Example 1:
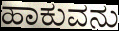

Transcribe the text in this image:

ಹಾಕುವನು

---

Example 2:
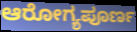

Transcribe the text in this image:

ಆರೋಗ್ಯಪೂರ್ಣ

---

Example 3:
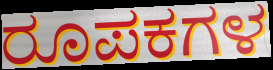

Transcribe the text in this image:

ರೂಪಕಗಳ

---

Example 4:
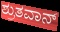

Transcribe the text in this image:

ಶ್ರುತವಾನ್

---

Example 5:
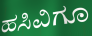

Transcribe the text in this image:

ಹಸಿವಿಗೂ